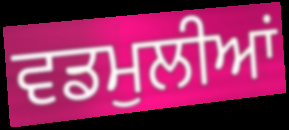
ਵਡਮੁਲੀਆਂ